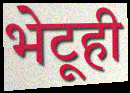
भेटूही